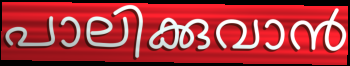
പാലിക്കുവാൻ